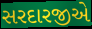
સરદારજીએ